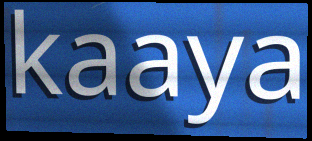
kaaya